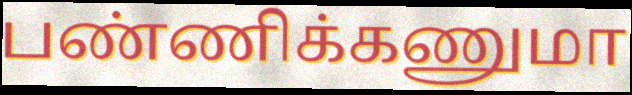
பண்ணிக்கணுமா